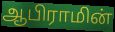
ஆபிராமின்